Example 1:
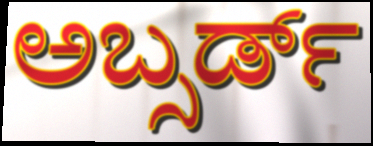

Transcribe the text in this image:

ಅಬ್ಸರ್ಡ್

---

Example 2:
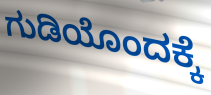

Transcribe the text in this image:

ಗುಡಿಯೊಂದಕ್ಕೆ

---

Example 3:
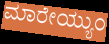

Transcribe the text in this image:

ಮಾರೇಯ್ಯುಂ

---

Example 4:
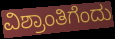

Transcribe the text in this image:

ವಿಶ್ರಾಂತಿಗೆಂದು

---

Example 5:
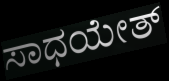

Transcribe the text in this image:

ಸಾಧಯೇತ್